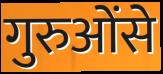
गुरुओंसे